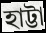
হাট্টা